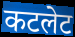
कटलेट